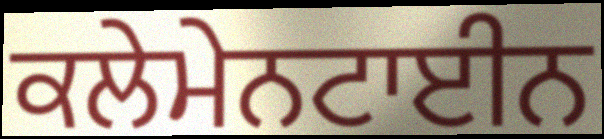
ਕਲੇਮੇਨਟਾਈਨ